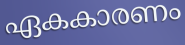
ഏകകാരണം